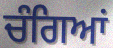
ਚੰਗਿਆਂ